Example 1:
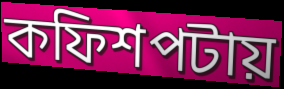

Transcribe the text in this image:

কফিশপটায়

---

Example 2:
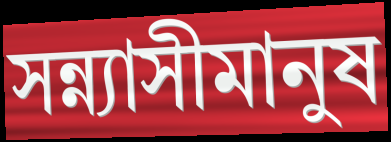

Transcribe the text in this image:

সন্ন্যাসীমানুষ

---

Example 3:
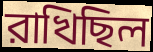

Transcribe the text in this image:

রাখিছিল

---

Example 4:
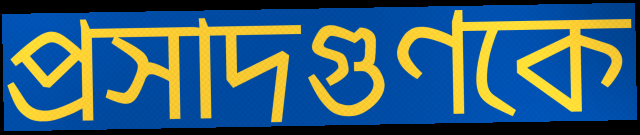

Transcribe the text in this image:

প্রসাদগুণকে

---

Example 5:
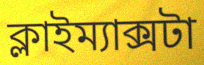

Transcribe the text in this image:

ক্লাইম্যাক্সটা